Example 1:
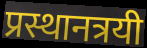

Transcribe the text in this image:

प्रस्थानत्रयी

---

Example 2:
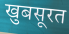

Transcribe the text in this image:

खुबसूरत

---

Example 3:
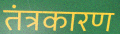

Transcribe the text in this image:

तंत्रकारण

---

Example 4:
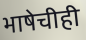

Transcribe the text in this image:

भाषेचीही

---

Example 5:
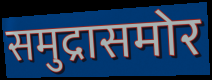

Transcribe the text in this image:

समुद्रासमोर